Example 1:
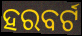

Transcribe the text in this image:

ହରବର୍ଟ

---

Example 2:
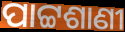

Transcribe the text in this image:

ପାଟ୍ଟଶାଣୀ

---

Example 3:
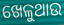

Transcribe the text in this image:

ଖେଳୁଥାଉ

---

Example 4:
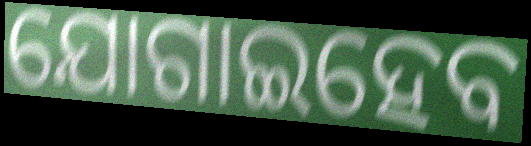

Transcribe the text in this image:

ଯୋଗାଇହେବ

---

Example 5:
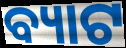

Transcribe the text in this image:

ବ୍ୟାଟ